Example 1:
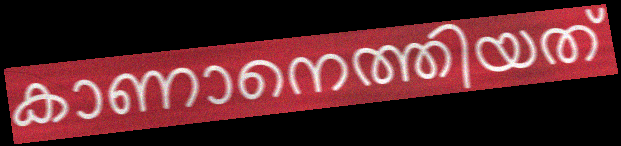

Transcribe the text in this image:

കാണാനെത്തിയത്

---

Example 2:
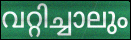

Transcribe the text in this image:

വറ്റിച്ചാലും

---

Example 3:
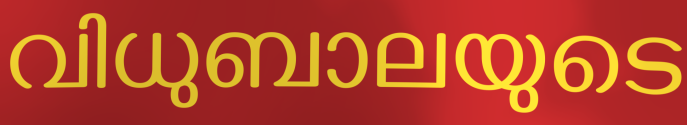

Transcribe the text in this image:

വിധുബാലയുടെ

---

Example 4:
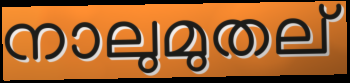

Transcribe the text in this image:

നാലുമുതല്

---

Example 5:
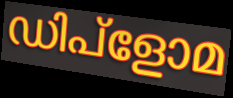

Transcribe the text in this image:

ഡിപ്ളോമ